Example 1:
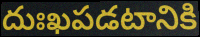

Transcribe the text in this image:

దుఃఖపడటానికి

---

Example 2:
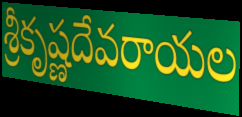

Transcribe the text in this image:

శ్రీకృష్ణదేవరాయల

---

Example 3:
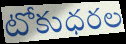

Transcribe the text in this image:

టోకుధరల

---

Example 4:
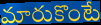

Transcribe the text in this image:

మారుకొంటే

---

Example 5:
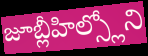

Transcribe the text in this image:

జూబ్లీహిల్స్లోని